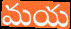
మయ